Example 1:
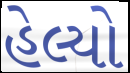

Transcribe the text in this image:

હેલ્યો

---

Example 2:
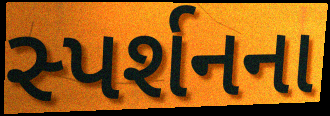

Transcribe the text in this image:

સ્પર્શનના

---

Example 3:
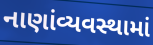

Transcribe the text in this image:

નાણાંવ્યવસ્થામાં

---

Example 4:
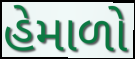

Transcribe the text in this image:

હેમાળો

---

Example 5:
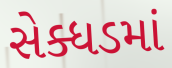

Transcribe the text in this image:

સેક્ધડમાં